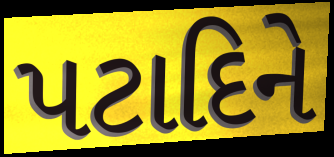
પટાદિને